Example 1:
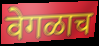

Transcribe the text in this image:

वेगळाच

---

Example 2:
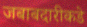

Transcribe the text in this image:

जबाबदारीकडे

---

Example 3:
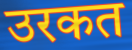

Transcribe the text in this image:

उरकत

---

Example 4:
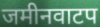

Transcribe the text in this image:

जमीनवाटप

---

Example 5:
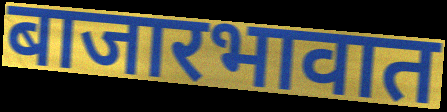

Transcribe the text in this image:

बाजारभावात